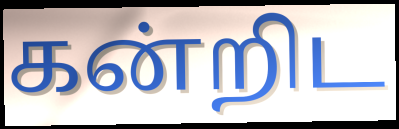
கன்றிட